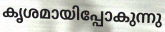
കൃശമായിപ്പോകുന്നു